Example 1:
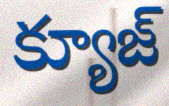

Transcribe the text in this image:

క్యూజ్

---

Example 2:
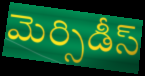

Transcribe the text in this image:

మెర్సిడీస్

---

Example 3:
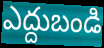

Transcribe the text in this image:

ఎద్దుబండి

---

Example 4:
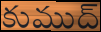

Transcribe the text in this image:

కుముద్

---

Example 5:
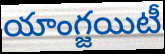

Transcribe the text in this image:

యాంగ్జయిటీ